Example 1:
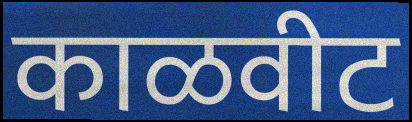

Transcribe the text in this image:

काळवीट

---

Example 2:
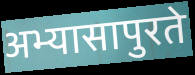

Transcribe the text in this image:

अभ्यासापुरते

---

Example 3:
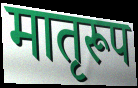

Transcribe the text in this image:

मातृरूप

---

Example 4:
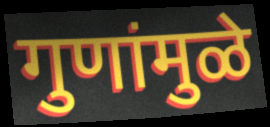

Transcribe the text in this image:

गुणांमुळे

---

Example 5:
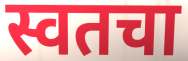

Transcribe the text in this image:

स्वतचा